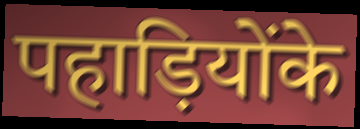
पहाड़ियोंके